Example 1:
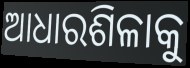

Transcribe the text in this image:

ଆଧାରଶିଳାକୁ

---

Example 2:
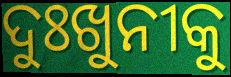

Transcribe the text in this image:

ଦୁଃଖୁନୀକୁ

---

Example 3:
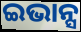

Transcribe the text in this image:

ଇଭାନ୍ସ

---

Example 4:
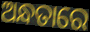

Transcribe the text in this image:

ଅନ୍ଧତାରେ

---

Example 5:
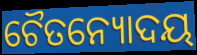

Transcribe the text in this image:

ଚୈତନ୍ୟୋଦୟ